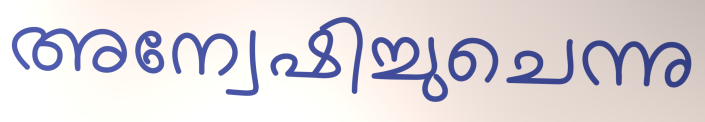
അന്വേഷിച്ചുചെന്നു